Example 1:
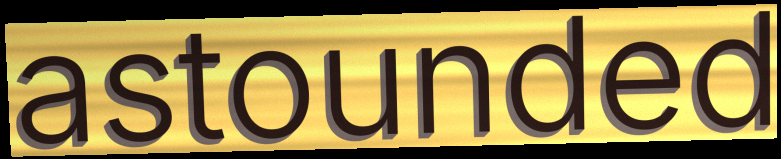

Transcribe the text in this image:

astounded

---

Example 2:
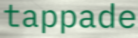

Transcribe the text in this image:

tappade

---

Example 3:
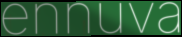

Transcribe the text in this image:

ennuva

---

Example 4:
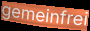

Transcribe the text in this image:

gemeinfrei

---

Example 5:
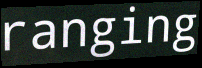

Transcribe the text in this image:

ranging